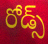
రోడ్స్